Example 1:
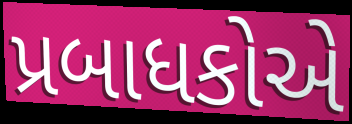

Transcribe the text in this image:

પ્રબાધકોએ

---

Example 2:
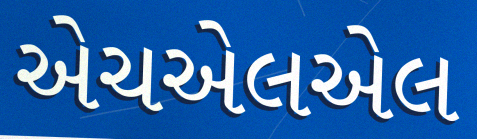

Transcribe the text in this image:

એચએલએલ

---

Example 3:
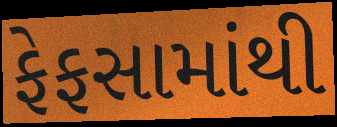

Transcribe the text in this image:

ફેફસામાંથી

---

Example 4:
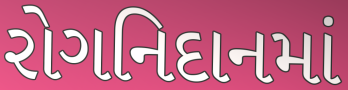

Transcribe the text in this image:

રોગનિદાનમાં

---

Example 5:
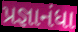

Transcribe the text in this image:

પ્રજ્ઞાનંધા